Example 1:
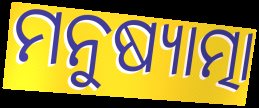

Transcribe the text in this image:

ମନୁଷ୍ୟାତ୍ମା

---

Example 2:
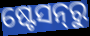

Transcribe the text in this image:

ଷ୍ଟେସନ୍‌ରୁ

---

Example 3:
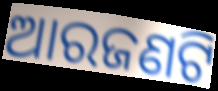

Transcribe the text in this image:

ଆରଜଣଟି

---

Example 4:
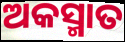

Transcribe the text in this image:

ଅକସ୍ମାତ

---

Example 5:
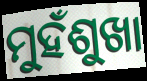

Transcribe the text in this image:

ମୁହଁଶୁଖା